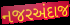
નજરઅંદાજ